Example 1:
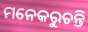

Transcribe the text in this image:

ମନେକରୁଚନ୍ତି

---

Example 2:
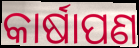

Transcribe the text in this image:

କାର୍ଷାପଣ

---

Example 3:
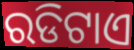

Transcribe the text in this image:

ରଡିଟାଏ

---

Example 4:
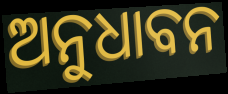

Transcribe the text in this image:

ଅନୁଧାବନ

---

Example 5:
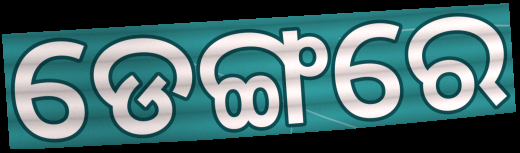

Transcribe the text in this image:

ଡେଙ୍ଗରେ